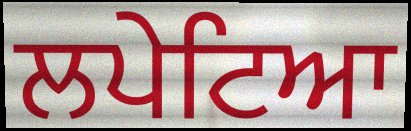
ਲਪੇਟਿਆ